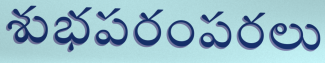
శుభపరంపరలు